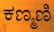
ಕಣ್ಮಣಿ